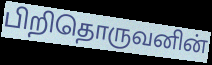
பிறிதொருவனின்